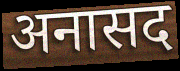
अनासद